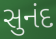
સુનંદ